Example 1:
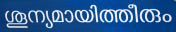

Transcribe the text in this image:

ശൂന്യമായിത്തീരും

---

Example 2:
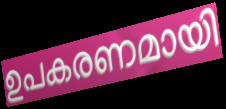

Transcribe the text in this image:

ഉപകരണമായി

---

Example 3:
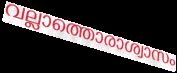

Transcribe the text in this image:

വല്ലാത്തൊരാശ്വാസം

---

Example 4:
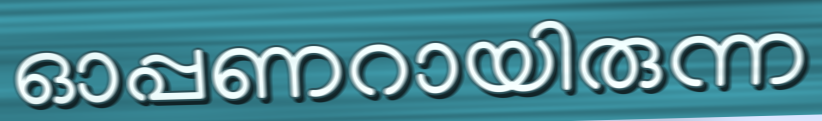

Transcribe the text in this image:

ഓപ്പണറായിരുന്ന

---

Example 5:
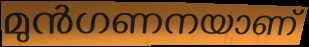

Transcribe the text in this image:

മുൻഗണനയാണ്